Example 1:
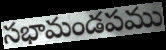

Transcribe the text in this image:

సభామండపము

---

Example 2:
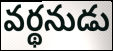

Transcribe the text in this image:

వర్థనుడు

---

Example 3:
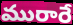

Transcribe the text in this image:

మురారే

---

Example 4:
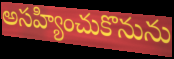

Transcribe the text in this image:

అసహ్యించుకొనును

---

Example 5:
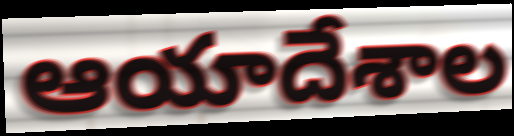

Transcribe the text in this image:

ఆయాదేశాల